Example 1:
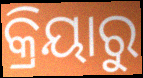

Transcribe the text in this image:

କ୍ରିୟାରୁ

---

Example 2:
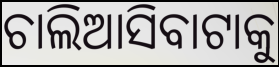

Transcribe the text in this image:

ଚାଲିଆସିବାଟାକୁ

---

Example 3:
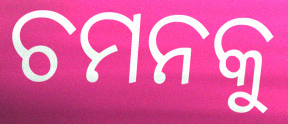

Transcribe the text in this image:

ଚମନକୁ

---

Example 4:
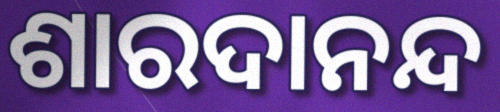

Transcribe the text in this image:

ଶାରଦାନନ୍ଦ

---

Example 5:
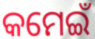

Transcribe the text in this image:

କମେଇଁ